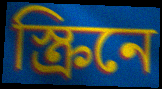
স্ক্রিনে